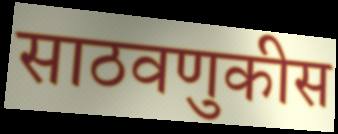
साठवणुकीस